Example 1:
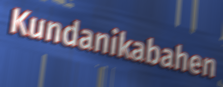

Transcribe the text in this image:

Kundanikabahen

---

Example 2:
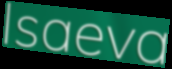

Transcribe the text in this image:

Isaeva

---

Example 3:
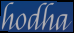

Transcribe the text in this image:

hodha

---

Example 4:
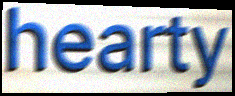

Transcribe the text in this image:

hearty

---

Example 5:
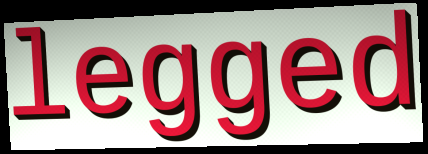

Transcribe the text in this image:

legged